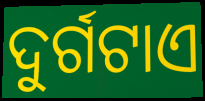
ଦୁର୍ଗଟାଏ